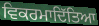
ਵਿਕਰਮਾਦਿੱਤਿਆ